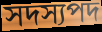
সদস্যপদ